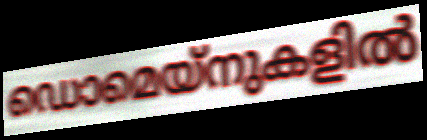
ഡൊമെയ്നുകളിൽ